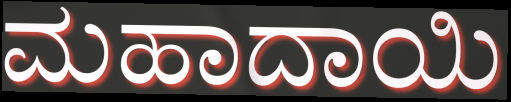
ಮಹಾದಾಯಿ